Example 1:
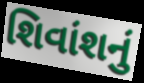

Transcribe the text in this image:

શિવાંશનું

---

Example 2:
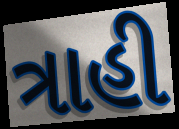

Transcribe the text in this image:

ત્રાહી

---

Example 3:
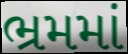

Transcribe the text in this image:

ભ્રમમાં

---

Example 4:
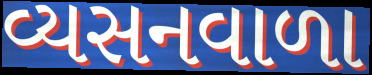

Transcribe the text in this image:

વ્યસનવાળા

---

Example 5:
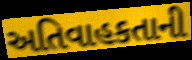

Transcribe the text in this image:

અતિવાહકતાની